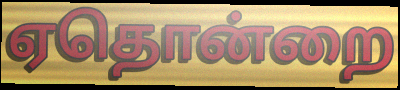
ஏதொன்றை